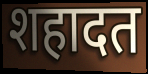
शहादत